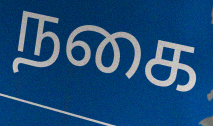
நகை